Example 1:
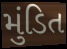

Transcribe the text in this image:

મુંડિત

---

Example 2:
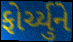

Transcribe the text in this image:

ફોર્ચ્યુને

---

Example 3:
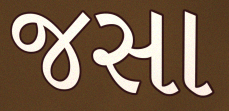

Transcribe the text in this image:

જસા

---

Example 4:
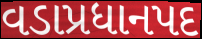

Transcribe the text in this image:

વડાપ્રધાનપદ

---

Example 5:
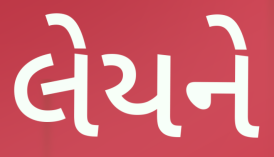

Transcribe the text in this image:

લેયને